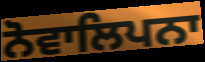
ਨੋਵਾਲਿਪਨਾ